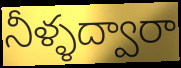
నీళ్ళద్వారా